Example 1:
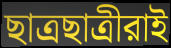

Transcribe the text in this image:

ছাত্রছাত্রীরাই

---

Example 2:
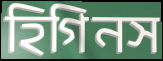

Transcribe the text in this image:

হিগিনস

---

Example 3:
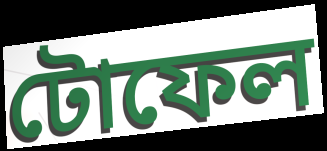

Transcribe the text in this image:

টোফেল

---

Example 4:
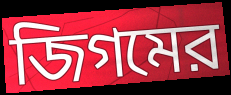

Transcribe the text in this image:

জিগমের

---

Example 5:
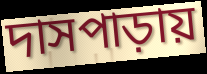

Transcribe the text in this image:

দাসপাড়ায়